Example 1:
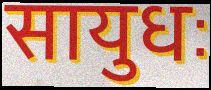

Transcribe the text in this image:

सायुधः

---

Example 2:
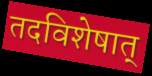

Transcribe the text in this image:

तदविशेषात्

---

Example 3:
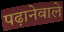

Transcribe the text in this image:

पढ़ानेवाले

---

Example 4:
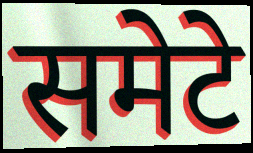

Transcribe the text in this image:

समेटे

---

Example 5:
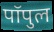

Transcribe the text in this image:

पॉपुल